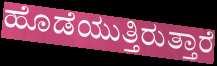
ಹೊಡೆಯುತ್ತಿರುತ್ತಾರೆ